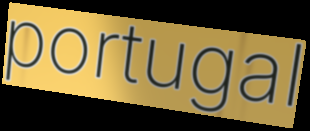
portugal